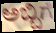
ಅಬ್ಬಿಗೆ